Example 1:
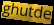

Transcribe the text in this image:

ghutde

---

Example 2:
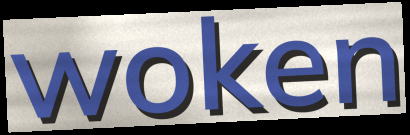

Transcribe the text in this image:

woken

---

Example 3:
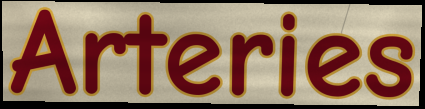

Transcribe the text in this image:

Arteries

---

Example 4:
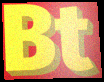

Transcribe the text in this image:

Bt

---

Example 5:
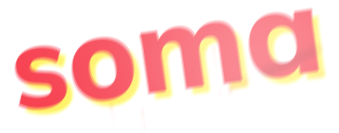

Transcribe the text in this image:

soma